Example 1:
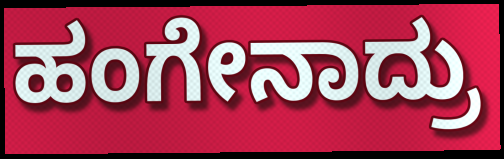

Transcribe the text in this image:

ಹಂಗೇನಾದ್ರು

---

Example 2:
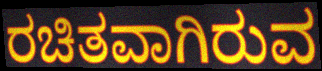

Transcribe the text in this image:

ರಚಿತವಾಗಿರುವ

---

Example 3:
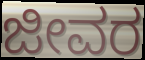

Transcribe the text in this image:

ಜೀವರ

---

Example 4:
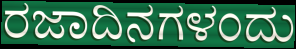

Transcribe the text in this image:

ರಜಾದಿನಗಳಂದು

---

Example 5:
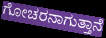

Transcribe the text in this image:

ಗೋಚರನಾಗುತ್ತಾನೆ